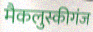
मैकलुस्कीगंज